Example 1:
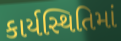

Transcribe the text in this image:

કાર્યસ્થિતિમાં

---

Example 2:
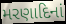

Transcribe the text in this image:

મરણાદિનાં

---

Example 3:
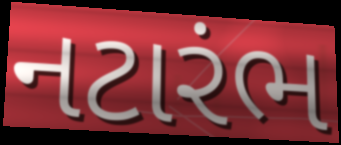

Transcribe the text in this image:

નટારંભ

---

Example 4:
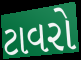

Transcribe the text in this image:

ટાવરો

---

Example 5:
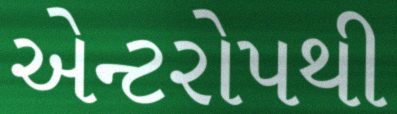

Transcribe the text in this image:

એન્ટરોપથી